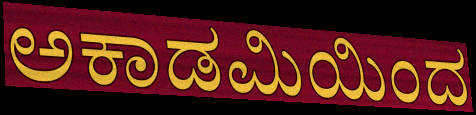
ಅಕಾಡಮಿಯಿಂದ